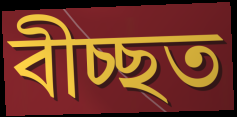
বীচ্ছত